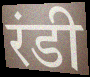
रंडी